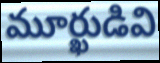
మూర్ఖుడివి